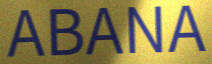
ABANA